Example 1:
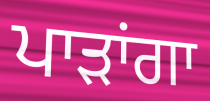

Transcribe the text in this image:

ਪਾੜਾਂਗਾ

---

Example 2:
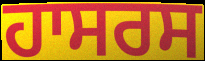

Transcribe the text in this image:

ਹਾਸਰਸ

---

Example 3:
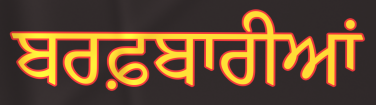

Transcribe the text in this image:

ਬਰਫ਼ਬਾਰੀਆਂ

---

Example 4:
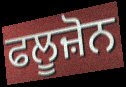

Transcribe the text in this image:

ਫਲੂਜ਼ੋਨ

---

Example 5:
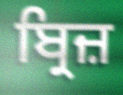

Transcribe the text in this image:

ਬ੍ਰਿਜ਼